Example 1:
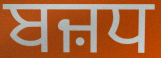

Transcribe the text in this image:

ਬਜ਼ਧ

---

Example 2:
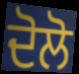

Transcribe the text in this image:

ਦੋਲੋ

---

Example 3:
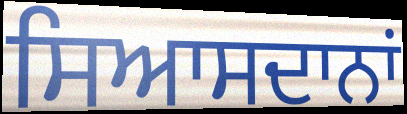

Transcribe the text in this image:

ਸਿਆਸਦਾਨਾਂ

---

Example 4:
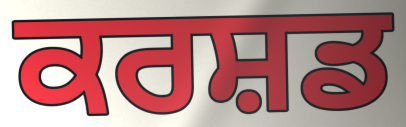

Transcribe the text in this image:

ਕਰਸ਼ਡ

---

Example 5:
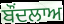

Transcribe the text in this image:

ਬੌਂਦਲਾਅ